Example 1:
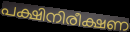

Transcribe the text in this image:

പക്ഷിനിരീക്ഷണ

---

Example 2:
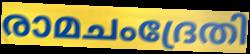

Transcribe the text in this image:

രാമചംദ്രേതി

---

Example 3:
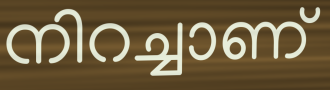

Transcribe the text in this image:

നിറച്ചാണ്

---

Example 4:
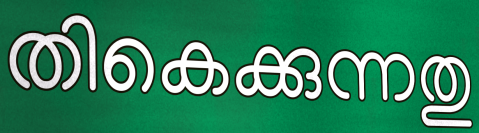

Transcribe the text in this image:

തികെക്കുന്നതു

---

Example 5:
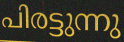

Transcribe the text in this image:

പിരട്ടുന്നു